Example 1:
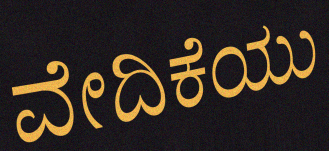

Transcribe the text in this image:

ವೇದಿಕೆಯು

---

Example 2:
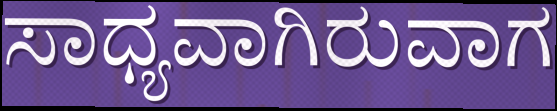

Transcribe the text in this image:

ಸಾಧ್ಯವಾಗಿರುವಾಗ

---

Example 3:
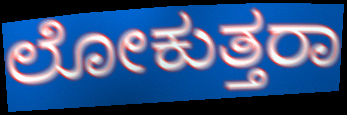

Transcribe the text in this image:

ಲೋಕುತ್ತರಾ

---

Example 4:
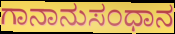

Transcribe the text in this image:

ಗಾನಾನುಸಂಧಾನ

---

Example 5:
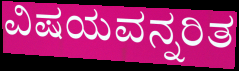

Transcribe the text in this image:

ವಿಷಯವನ್ನರಿತ